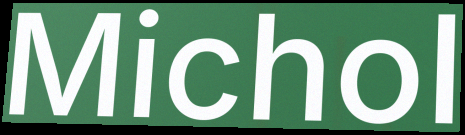
Michol